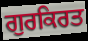
ਗੁਰਕਿਰਤ